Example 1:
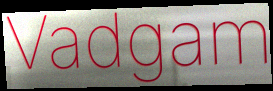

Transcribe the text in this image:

Vadgam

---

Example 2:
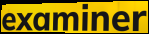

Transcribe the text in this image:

examiner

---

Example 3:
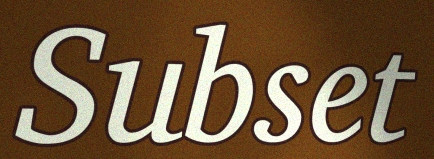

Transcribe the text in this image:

Subset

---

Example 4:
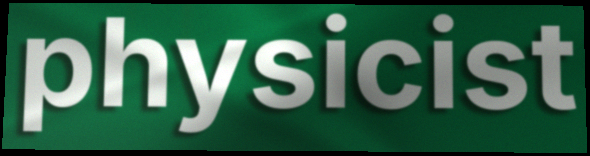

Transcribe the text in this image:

physicist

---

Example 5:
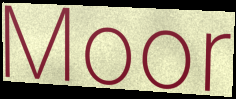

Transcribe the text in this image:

Moor